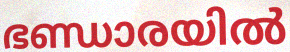
ഭണ്ഡാരയിൽ